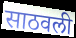
साठवली